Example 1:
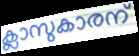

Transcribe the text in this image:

ക്ലാസുകാരന്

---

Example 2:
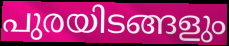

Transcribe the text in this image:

പുരയിടങ്ങളും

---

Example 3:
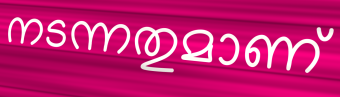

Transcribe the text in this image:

നടന്നതുമാണ്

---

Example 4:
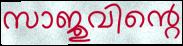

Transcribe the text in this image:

സാജുവിന്റെ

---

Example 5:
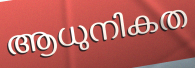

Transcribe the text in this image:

ആധുനികത